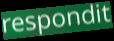
respondit